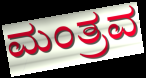
ಮಂತ್ರವ